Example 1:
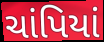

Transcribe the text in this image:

ચાંપિયાં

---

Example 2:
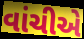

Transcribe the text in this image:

વાંચીએ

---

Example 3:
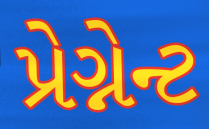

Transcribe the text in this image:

પ્રેગ્નેન્ટ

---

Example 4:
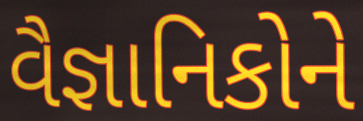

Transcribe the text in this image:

વૈજ્ઞાનિકોને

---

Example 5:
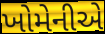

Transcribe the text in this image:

ખોમેનીએ